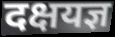
दक्षयज्ञ